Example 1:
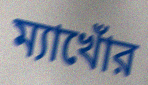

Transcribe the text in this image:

ম্যাখোঁর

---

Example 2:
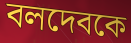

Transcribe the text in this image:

বলদেবকে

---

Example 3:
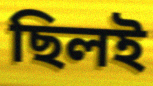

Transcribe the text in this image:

ছিলই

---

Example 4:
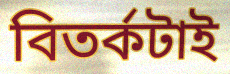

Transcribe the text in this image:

বিতর্কটাই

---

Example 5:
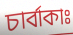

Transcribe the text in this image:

চার্বাকাঃ